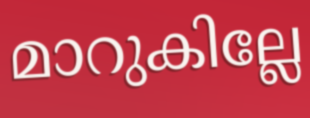
മാറുകില്ലേ